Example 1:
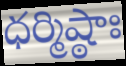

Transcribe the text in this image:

ధర్మిష్ఠాః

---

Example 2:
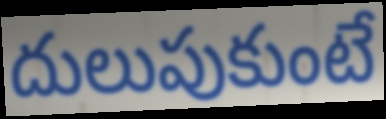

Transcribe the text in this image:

దులుపుకుంటే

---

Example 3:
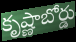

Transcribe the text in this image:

కృష్ణాబోర్డు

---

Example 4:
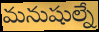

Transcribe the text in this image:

మనుషుల్నే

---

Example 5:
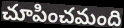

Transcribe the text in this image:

చూపించమంది